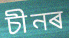
চীনৰ